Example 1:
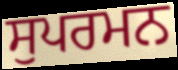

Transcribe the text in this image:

ਸੁਪਰਮਨ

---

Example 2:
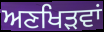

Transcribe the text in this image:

ਅਣਖਿੜਵਾਂ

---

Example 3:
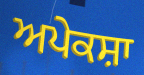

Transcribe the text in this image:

ਅਪੇਕਸ਼ਾ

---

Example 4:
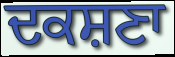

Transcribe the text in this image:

ਦਕਸ਼ਣਾ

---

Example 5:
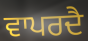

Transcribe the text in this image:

ਵਾਪਰਦੈ